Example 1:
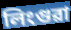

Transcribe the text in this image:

লিংগুৱা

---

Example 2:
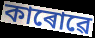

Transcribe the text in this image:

কাৰোৱে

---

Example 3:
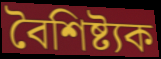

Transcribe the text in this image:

বৈশিষ্ট্যক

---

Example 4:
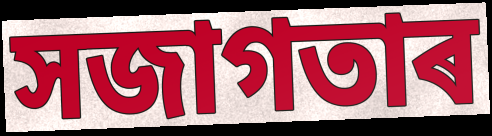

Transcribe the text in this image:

সজাগতাৰ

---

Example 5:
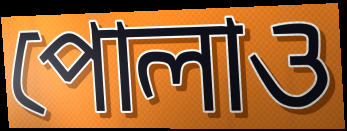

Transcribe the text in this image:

পোলাও